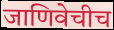
जाणिवेचीच